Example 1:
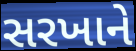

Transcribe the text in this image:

સરખાને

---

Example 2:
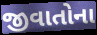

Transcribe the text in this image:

જીવાતોના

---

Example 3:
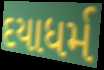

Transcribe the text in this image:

દયાધર્મ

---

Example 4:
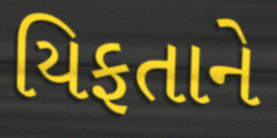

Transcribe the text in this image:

યિફતાને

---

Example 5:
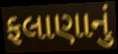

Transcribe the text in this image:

ફલાણાનું